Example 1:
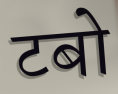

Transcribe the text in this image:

टबो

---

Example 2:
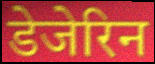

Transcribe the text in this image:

डेजेरिन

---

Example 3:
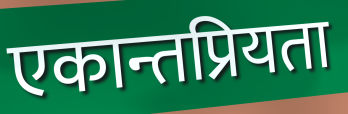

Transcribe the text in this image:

एकान्तप्रियता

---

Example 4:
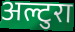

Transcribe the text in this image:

अल्टुरा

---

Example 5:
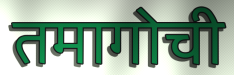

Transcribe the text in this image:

तमागोची